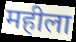
महीला